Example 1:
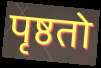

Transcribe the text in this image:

पृष्ठतो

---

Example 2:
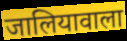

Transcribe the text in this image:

जालियावाला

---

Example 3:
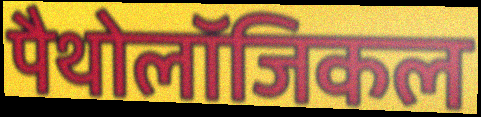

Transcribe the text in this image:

पैथोलॉजिकल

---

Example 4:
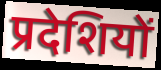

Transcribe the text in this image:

प्रदेशियों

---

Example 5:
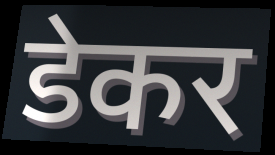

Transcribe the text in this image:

डेकर